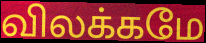
விலக்கமே